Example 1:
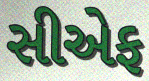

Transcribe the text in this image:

સીએફ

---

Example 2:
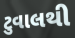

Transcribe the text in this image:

ટુવાલથી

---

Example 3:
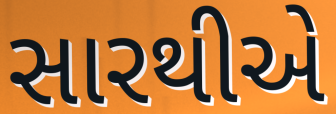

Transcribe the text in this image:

સારથીએ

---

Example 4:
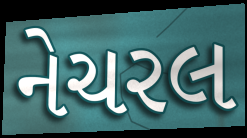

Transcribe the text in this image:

નેચરલ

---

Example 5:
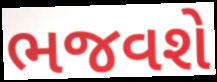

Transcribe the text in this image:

ભજવશે